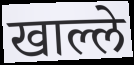
खाल्ले